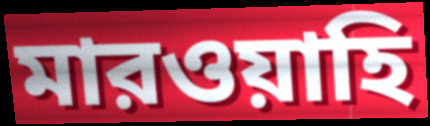
মারওয়াহি